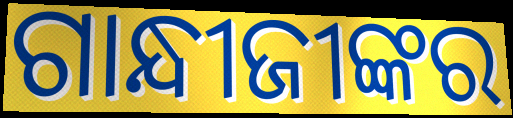
ଗାନ୍ଧୀଜୀଙ୍କର